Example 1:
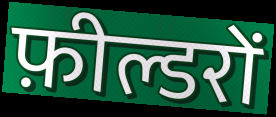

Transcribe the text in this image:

फ़ील्डरों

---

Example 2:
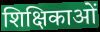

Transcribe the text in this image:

शिक्षिकाओं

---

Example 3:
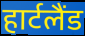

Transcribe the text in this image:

हार्टलैंड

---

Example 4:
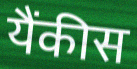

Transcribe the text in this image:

यैंकीस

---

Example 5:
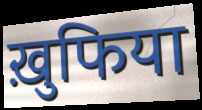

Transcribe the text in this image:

ख़ुफिया